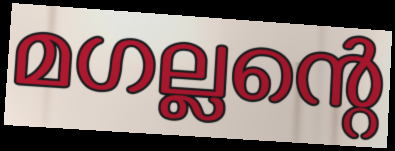
മഗല്ലന്റെ